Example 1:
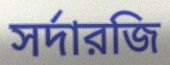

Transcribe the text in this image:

সর্দারজি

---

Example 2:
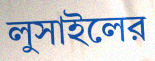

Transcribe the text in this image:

লুসাইলের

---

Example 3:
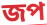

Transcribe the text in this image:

জপ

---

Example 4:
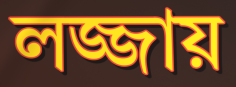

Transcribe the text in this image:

লজ্জায়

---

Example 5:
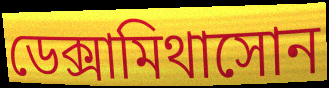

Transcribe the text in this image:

ডেক্সামিথাসোন